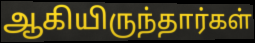
ஆகியிருந்தார்கள்